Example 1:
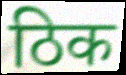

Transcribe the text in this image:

ठिक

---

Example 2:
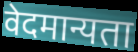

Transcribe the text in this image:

वेदमान्यता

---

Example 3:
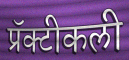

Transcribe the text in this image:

प्रॅक्टीकली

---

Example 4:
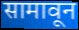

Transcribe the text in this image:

सामावून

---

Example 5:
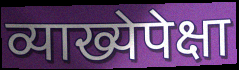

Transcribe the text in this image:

व्याख्येपेक्षा